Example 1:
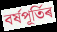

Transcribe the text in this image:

বৰ্ষপূৰ্তিৰ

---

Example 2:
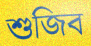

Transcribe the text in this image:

শুজিব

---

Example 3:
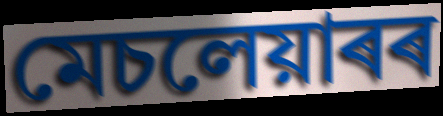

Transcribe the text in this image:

মেচলেয়াৰৰ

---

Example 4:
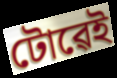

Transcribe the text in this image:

টোৱেই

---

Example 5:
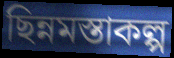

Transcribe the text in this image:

ছিন্নমস্তাকল্প